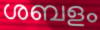
ശബളം